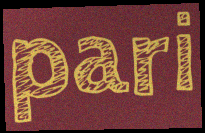
pari